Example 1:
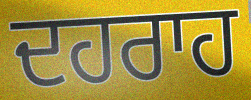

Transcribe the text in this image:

ਦਹਰਾਹ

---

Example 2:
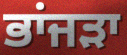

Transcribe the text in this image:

ਭਾਂਜੜਾ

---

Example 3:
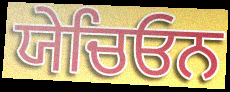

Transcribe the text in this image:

ਯੇਚਿਓਨ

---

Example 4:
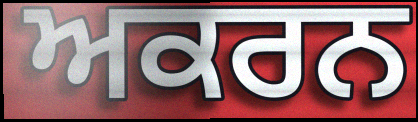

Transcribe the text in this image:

ਅਕਰਨ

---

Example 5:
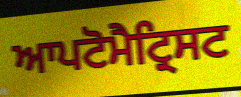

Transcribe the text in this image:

ਆਪਟੋਮੈਟ੍ਰਿਸਟ